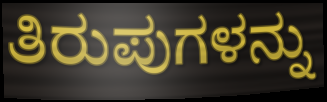
ತಿರುಪುಗಳನ್ನು